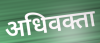
अधिवक्ता